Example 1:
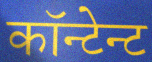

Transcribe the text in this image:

कॉन्टेन्ट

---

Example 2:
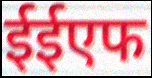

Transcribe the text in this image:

ईईएफ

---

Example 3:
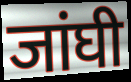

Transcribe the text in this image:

जांघी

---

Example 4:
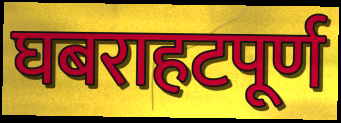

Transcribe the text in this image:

घबराहटपूर्ण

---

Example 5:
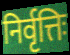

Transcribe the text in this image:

निर्वृत्तिः